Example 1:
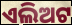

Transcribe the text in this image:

ଏଲିଅଟ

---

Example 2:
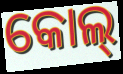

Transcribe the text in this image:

କୋଲ୍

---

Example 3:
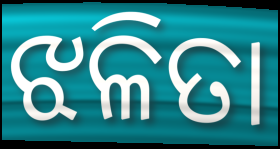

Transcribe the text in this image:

ଝଳିତା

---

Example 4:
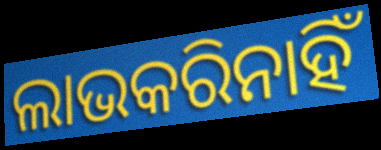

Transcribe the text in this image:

ଲାଭକରିନାହିଁ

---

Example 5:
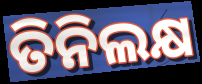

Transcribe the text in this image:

ତିନିଲକ୍ଷ